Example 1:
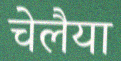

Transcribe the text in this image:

चेलैया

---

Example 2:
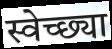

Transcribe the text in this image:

स्वेच्छ्या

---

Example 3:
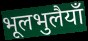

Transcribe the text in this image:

भूलभुलैयाँ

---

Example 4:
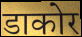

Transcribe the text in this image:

डाकोर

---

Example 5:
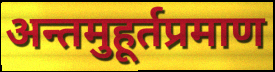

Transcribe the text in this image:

अन्तमुहूर्तप्रमाण